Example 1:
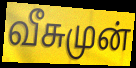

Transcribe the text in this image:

வீசுமுன்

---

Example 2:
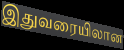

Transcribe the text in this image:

இதுவரையிலான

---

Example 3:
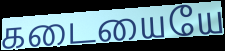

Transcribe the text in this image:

கடையையே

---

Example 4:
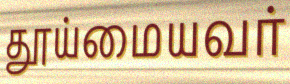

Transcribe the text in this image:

தூய்மையவர்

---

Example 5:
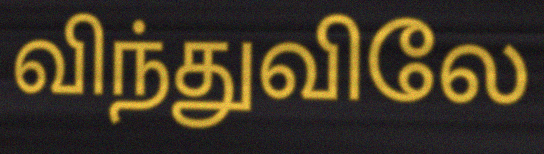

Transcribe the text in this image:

விந்துவிலே